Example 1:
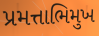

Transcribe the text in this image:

પ્રમત્તાભિમુખ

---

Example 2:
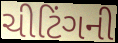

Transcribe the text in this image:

ચીટિંગની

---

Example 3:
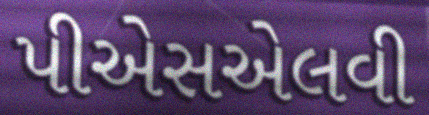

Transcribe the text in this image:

પીએસએલવી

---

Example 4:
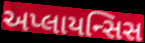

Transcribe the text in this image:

અપ્લાયન્સિસ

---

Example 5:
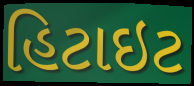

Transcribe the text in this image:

હિટાઇટ